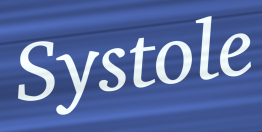
Systole